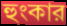
হুংকার